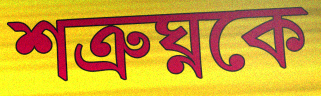
শত্রুঘ্নকে